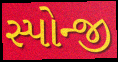
સ્પોન્જી